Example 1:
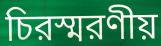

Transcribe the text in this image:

চিরস্মরণীয়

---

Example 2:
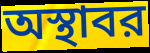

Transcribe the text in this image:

অস্থাবর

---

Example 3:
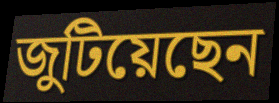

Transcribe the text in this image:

জুটিয়েছেন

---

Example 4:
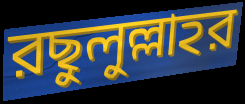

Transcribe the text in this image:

রছুলুল্লাহর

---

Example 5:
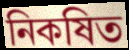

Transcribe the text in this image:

নিকষিত